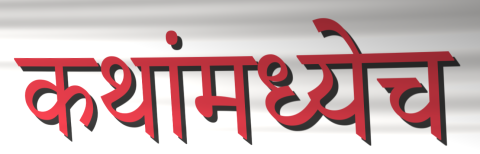
कथांमध्येच